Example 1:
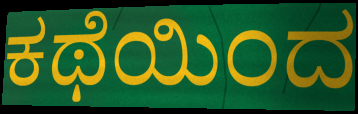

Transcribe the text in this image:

ಕಥೆಯಿಂದ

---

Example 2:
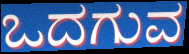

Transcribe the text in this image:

ಒದಗುವ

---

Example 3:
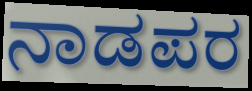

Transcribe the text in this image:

ನಾಡಪರ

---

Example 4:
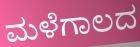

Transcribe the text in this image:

ಮಳೆಗಾಲದ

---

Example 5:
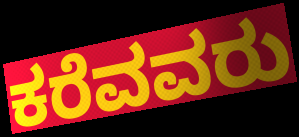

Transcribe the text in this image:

ಕರೆವವರು